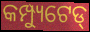
କମ୍ପ୍ୟୁଟେଡ୍